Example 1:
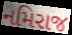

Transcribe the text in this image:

નમિરાજ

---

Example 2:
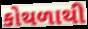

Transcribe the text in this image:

કોથળાથી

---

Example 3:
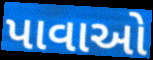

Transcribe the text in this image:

પાવાઓ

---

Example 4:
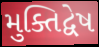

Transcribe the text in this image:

મુક્તિદ્વેષ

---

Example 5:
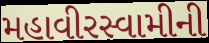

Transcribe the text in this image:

મહાવીરસ્વામીની